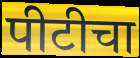
पीटीचा